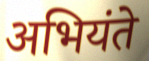
अभियंते